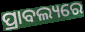
ପ୍ରାବଲ୍ୟରେ